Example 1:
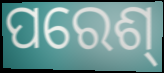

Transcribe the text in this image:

ପରେଶ୍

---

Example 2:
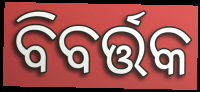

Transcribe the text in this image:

ବିବର୍ତ୍ତକ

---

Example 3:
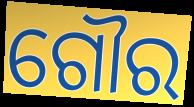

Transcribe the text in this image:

ଗୌର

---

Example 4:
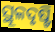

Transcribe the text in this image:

ସ୍ଥୂଳଦୃଷ୍ଟି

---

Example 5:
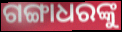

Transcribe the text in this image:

ଗଙ୍ଗାଧରଙ୍କୁ